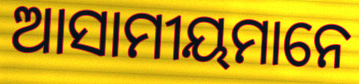
ଆସାମୀୟମାନେ